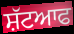
ਸ਼ੱਟਆਫ